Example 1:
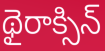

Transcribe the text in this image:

థైరాక్సిన్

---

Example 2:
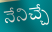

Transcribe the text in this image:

నేనిచ్చే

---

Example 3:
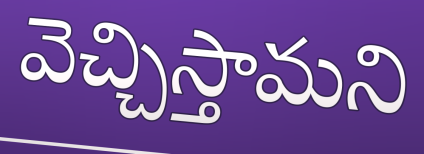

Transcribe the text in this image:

వెచ్చిస్తామని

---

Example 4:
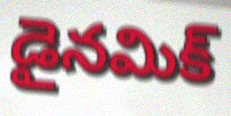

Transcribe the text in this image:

డైనమిక్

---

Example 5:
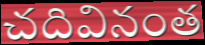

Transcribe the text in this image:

చదివినంత